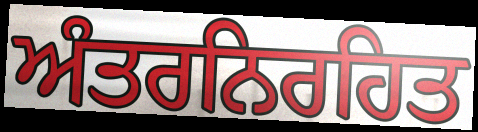
ਅੰਤਰਨਿਰਹਿਤ